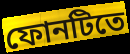
ফোনটিতে